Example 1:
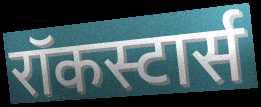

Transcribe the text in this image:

रॉकस्टार्स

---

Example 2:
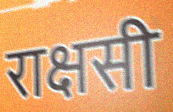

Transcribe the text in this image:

राक्षसी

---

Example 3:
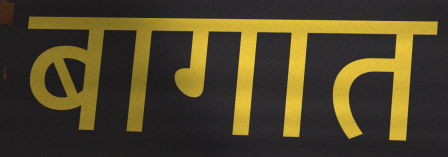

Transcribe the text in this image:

बागात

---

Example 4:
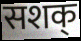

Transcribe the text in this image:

सशक्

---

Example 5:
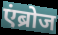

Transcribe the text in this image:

एंब्रोज